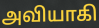
அவியாகி